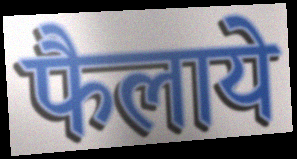
फैलाये